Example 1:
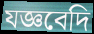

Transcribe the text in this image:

যজ্ঞবেদি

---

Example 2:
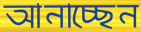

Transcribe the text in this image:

আনাচ্ছেন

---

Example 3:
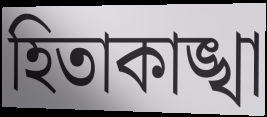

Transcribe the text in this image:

হিতাকাঙ্খা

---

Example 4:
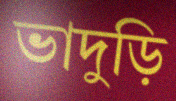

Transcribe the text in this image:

ভাদুড়ি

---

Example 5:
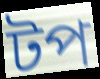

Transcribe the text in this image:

টপ